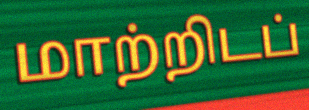
மாற்றிடப்